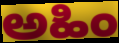
ಅಹಿಂ